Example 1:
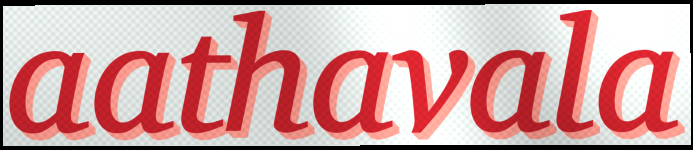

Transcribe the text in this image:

aathavala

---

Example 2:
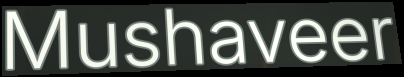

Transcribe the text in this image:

Mushaveer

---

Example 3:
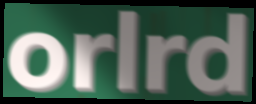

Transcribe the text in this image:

orlrd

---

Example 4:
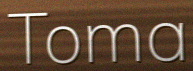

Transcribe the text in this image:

Toma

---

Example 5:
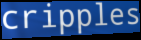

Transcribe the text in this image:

cripples